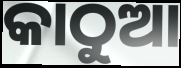
କାଠୁଆ